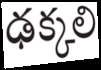
ఢక్కలి